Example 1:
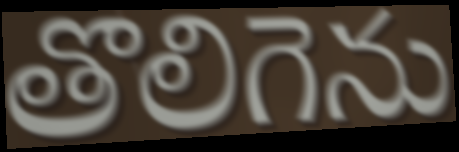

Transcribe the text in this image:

తొలిగెను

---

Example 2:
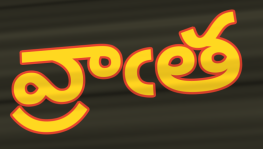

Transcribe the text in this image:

వ్రాఁత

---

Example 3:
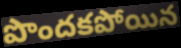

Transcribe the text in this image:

పొందకపోయిన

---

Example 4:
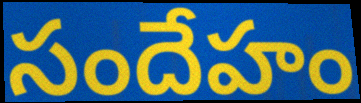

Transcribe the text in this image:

సందేహం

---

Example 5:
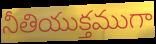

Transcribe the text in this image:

నీతియుక్తముగా